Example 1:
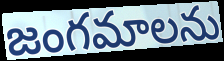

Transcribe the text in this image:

జంగమాలను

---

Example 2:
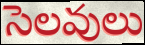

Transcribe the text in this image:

సెలవులు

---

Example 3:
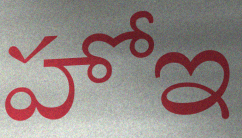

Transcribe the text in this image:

హోఇ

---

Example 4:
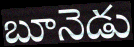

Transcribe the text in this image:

బూనెడు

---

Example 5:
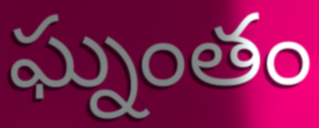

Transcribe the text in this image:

ఘ్నంతం